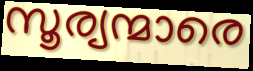
സൂര്യന്മാരെ